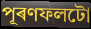
পূৰণফলটো